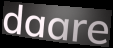
daare